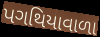
પગથિયાવાળા